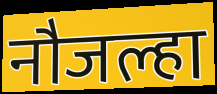
नौजल्हा